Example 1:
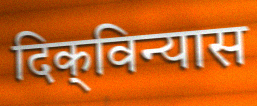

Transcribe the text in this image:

दिक्‌विन्यास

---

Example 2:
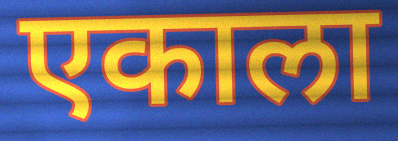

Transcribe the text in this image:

एकाला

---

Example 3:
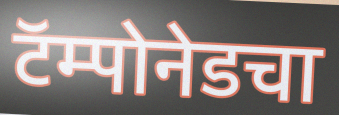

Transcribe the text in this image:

टॅम्पोनेडचा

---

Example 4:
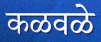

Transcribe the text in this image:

कळवळे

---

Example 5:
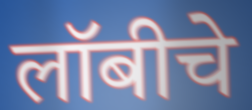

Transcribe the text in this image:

लॉबीचे